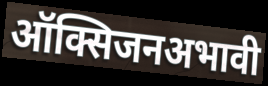
ऑक्सिजनअभावी